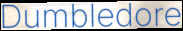
Dumbledore